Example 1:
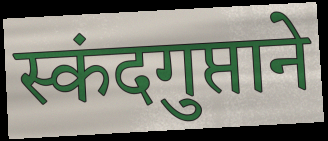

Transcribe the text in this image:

स्कंदगुप्ताने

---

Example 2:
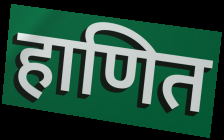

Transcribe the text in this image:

हाणित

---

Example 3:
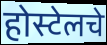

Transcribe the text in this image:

होस्टेलचे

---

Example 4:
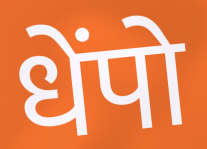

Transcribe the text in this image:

धेंपो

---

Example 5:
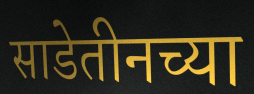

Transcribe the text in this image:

साडेतीनच्या